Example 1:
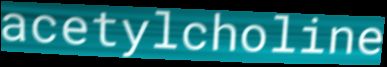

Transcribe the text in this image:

acetylcholine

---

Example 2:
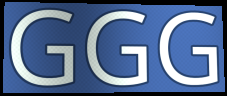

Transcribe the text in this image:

GGG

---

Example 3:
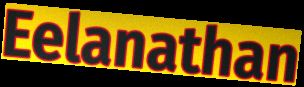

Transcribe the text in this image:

Eelanathan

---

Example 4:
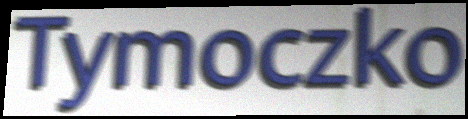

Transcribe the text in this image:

Tymoczko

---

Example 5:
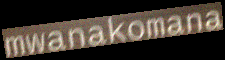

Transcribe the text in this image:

mwanakomana